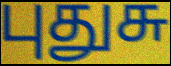
புதுசு